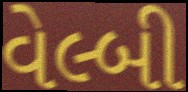
વેલ્બી